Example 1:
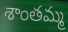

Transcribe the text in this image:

శాంతమ్మ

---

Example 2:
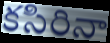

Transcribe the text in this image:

కసిరినా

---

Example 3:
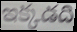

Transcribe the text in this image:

ఇక్కడది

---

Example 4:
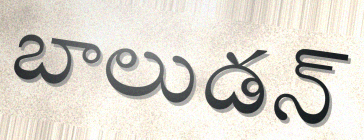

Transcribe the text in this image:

బాలుడన్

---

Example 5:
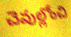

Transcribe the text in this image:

చెవుల్లోంచి